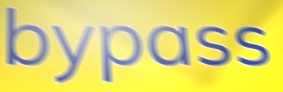
bypass